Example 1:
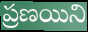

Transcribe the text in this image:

ప్రణయిని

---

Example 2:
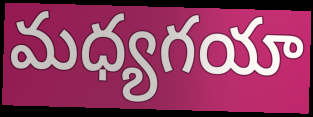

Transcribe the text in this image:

మధ్యగయా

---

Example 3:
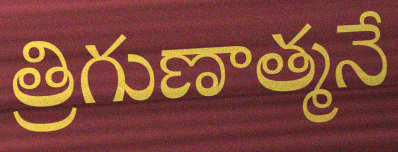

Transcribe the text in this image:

త్రిగుణాత్మనే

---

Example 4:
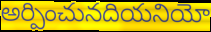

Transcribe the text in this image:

అర్పించునదియనియో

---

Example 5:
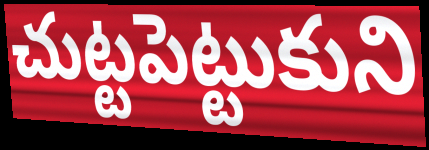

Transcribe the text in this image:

చుట్టపెట్టుకుని